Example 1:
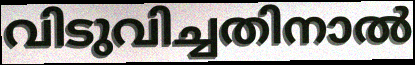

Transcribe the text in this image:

വിടുവിച്ചതിനാൽ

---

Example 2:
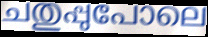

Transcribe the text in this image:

ചതുപ്പുപോലെ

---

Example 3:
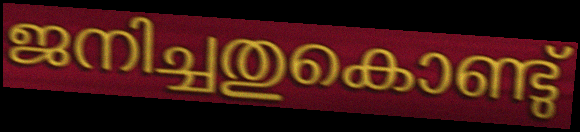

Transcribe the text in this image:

ജനിച്ചതുകൊണ്ടു്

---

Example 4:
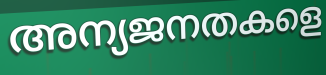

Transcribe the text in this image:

അന്യജനതകളെ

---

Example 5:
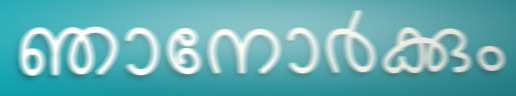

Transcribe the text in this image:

ഞാനോർക്കും